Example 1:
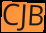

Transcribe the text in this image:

CJB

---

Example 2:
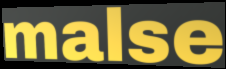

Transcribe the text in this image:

malse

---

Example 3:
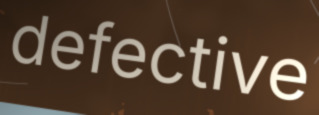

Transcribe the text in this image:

defective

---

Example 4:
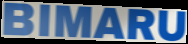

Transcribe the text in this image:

BIMARU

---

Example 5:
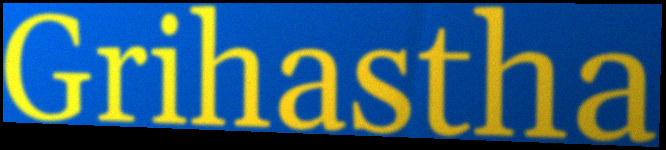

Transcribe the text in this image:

Grihastha